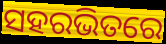
ସହରଭିତରେ